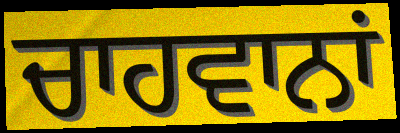
ਚਾਹਵਾਨਾਂ